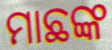
ମାଛଙ୍କ